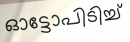
ഓട്ടോപിടിച്ച്